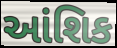
આંશિક